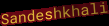
Sandeshkhali